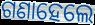
ଗଣାହେଲେ